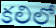
కలిలో